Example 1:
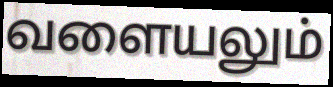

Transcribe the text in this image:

வளையலும்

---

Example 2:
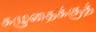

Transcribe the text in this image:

கழுதைக்குத்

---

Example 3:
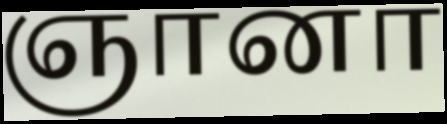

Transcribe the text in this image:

ஞானா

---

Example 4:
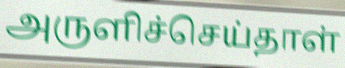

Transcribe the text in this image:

அருளிச்செய்தாள்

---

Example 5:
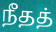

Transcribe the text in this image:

நீதத்